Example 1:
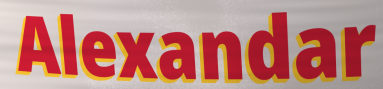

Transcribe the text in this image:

Alexandar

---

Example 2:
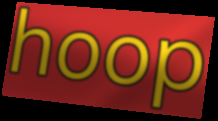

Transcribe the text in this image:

hoop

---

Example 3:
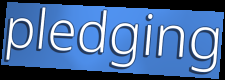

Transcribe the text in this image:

pledging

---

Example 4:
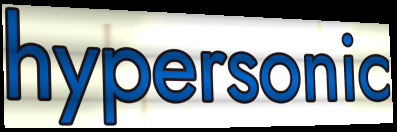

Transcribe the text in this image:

hypersonic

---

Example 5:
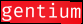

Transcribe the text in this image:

gentium